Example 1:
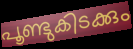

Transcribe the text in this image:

പൂണ്ടുകിടക്കും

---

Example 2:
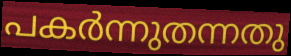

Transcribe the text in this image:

പകർന്നുതന്നതു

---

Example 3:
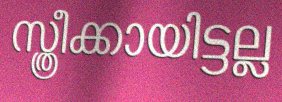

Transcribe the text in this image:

സ്ത്രീക്കായിട്ടല്ല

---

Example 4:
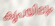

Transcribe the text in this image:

കൃപയിലും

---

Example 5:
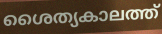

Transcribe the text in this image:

ശൈത്യകാലത്ത്